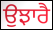
ਉਝਾਰੈ